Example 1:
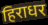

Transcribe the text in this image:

हिराधर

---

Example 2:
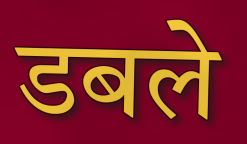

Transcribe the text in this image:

डबले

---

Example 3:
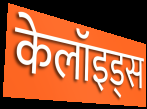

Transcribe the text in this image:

केलॉइड्स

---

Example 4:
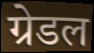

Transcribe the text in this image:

ग्रेडल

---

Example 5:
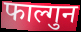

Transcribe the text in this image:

फाल्गुन